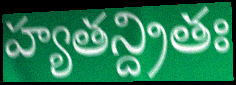
హ్యతన్ద్రితః